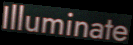
Illuminate